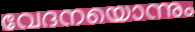
വേദനയൊന്നും